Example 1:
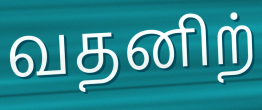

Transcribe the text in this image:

வதனிற்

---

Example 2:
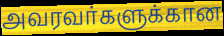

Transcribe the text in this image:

அவரவர்களுக்கான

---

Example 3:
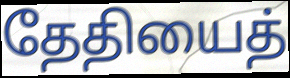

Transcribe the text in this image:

தேதியைத்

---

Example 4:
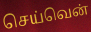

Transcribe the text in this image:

செய்வென்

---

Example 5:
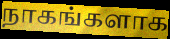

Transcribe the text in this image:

நாகங்களாக